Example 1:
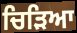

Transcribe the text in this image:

ਚਿੜਿਆ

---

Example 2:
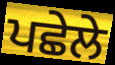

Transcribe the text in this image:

ਪਛੇਲੇ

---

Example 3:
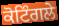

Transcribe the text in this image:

ਕੋਟਿੰਗਲੇ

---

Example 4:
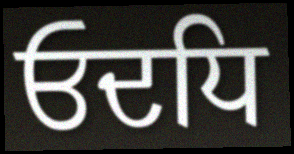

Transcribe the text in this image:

ਓਦਧਿ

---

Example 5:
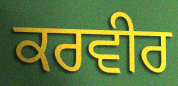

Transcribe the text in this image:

ਕਰਵੀਰ